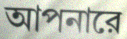
আপনারে